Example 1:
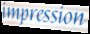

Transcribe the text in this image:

impression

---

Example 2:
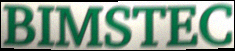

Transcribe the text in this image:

BIMSTEC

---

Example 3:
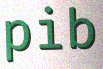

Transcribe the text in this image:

pib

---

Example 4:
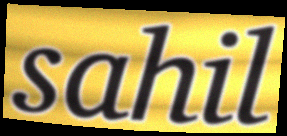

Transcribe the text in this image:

sahil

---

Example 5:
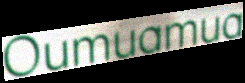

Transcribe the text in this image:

Oumuamua